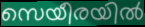
സെയീരയിൽ